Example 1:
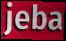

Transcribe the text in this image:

jeba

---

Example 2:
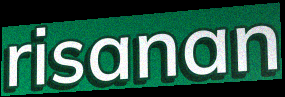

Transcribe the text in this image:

risanan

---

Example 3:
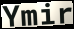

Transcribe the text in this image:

Ymir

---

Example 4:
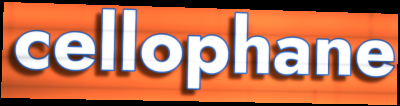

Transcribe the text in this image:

cellophane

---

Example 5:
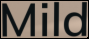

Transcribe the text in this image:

Mild